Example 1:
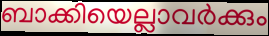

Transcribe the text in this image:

ബാക്കിയെല്ലാവർക്കും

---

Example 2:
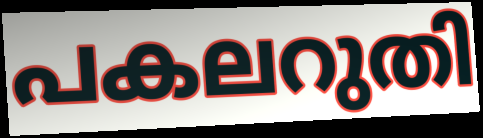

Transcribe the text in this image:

പകലറുതി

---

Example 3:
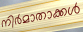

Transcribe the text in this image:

നിർമാതാക്കൾ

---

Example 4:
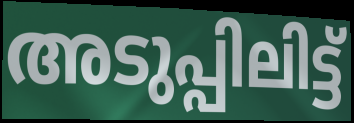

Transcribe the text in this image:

അടുപ്പിലിട്ട്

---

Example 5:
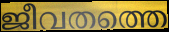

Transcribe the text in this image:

ജീവതത്തെ